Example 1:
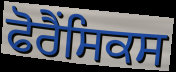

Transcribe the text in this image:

ਫੋਰੈਂਸਿਕਸ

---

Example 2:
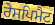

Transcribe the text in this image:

ਰੇਸਪਿਮੈਟ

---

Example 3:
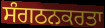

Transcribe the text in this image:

ਸੰਗਠਨਕਰਤਾ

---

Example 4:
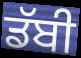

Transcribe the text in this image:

ਡੱਬੀ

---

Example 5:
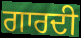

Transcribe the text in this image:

ਗਾਰਦੀ